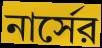
নার্সের